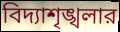
বিদ্যাশৃঙ্খলার